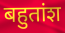
बहुतांश